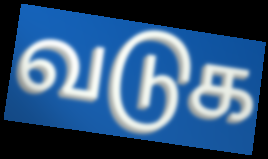
வடுக